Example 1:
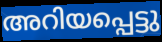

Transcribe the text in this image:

അറിയപ്പെട്ടു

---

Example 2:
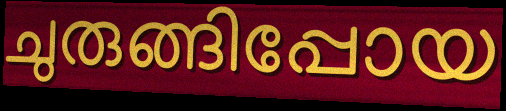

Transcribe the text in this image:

ചുരുങ്ങിപ്പോയ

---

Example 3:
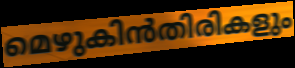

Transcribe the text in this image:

മെഴുകിൻതിരികളും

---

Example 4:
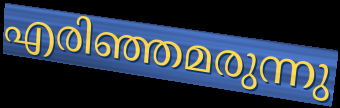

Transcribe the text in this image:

എരിഞ്ഞമരുന്നു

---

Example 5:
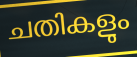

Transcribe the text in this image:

ചതികളും